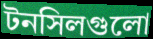
টনসিলগুলো